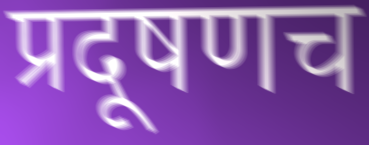
प्रदूषणच